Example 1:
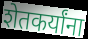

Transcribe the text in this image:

शेतकर्यांना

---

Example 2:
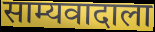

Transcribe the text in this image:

साम्यवादाला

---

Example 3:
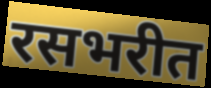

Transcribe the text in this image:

रसभरीत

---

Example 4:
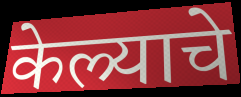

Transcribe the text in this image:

केल्याचे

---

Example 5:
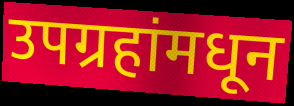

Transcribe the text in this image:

उपग्रहांमधून